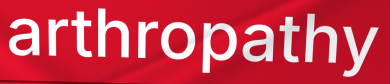
arthropathy